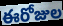
ఈరోజుల